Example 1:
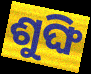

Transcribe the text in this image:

ଶୁଙ୍ଘି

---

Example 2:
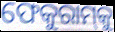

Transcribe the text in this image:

ଫେକୁରାମ୍‌କୁ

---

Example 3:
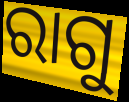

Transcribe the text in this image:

ରାଗୁ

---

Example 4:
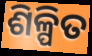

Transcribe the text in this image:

ଶିଳ୍ପିତ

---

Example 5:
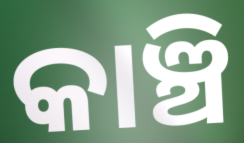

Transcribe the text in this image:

କାଞ୍ଚି